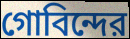
গোবিন্দের